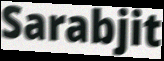
Sarabjit